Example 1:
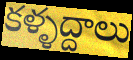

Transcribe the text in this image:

కళ్ళద్దాలు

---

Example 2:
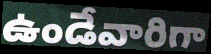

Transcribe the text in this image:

ఉండేవారిగా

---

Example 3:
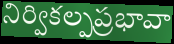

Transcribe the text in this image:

నిర్వికల్పప్రభావా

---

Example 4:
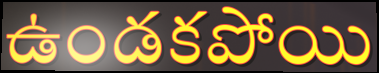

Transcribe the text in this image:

ఉండకపోయి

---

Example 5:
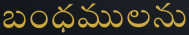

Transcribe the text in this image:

బంధములను